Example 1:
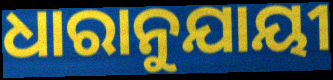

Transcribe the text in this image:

ଧାରାନୁଯାୟୀ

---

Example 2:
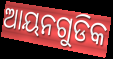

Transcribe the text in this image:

ଆୟନଗୁଡିକ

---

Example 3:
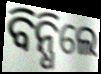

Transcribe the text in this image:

ବିନ୍ଧିଲେ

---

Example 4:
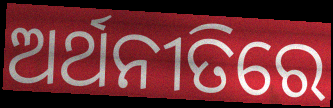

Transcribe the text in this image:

ଅର୍ଥନୀତିରେ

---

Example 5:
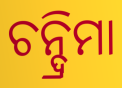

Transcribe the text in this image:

ଚନ୍ଦ୍ରିମା